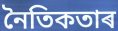
নৈতিকতাৰ